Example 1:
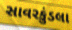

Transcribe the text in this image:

સાવરકુંડલા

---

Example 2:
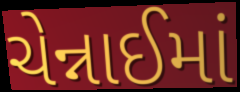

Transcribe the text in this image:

ચેન્નાઈમાં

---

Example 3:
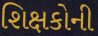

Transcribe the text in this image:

શિક્ષકોની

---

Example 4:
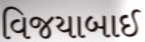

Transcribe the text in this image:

વિજયાબાઈ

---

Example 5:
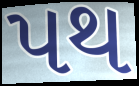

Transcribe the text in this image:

પથ